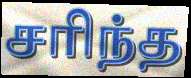
சரிந்த